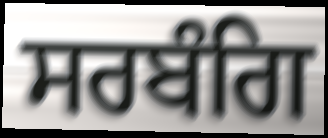
ਸਰਬੰਗਿ